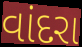
વાંદરા